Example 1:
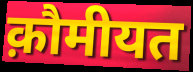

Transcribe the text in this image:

क़ौमीयत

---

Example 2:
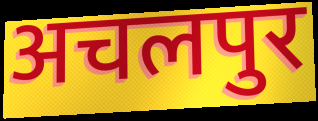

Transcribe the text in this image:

अचलपुर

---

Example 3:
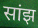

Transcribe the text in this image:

सांझ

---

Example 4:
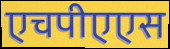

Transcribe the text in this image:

एचपीएएस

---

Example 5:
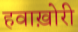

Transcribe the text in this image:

हवाख़ोरी